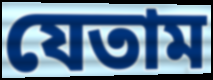
যেতাম